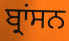
ਬ੍ਰਾਂਸਨ